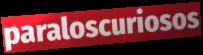
paraloscuriosos